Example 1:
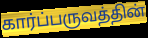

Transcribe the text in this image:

கார்ப்பருவத்தின்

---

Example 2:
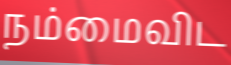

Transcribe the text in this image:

நம்மைவிட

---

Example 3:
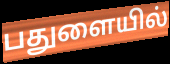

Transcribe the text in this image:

பதுளையில்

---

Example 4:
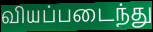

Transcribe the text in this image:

வியப்படைந்து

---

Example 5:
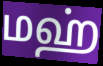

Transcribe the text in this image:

மஹ்